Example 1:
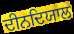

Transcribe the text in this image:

ਦੀਨਦਿਯਾਲ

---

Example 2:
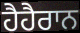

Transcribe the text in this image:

ਹੈਹੈਰਾਨ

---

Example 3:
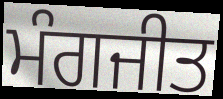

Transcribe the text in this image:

ਮੰਗਜੀਤ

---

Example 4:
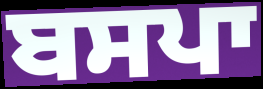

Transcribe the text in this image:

ਬਸਪਾ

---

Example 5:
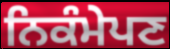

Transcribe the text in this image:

ਨਿਕੰਮੇਪਣ